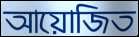
আয়োজিত